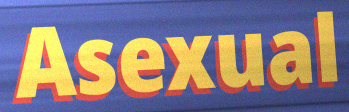
Asexual